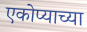
एकोप्याच्या